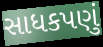
સાધકપણું